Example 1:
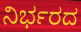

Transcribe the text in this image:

ನಿರ್ಭರದ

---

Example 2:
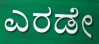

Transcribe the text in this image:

ಎರಡೇ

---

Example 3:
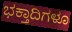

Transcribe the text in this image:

ಭಕ್ತಾದಿಗಳೂ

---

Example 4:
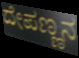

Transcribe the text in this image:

ದೇಪಣ್ಣನ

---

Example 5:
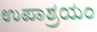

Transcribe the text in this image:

ಉಪಾಶ್ರಯಂ